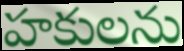
హకులను